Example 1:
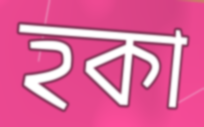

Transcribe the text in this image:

হকা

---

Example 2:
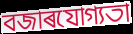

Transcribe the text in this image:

বজাৰযোগ্যতা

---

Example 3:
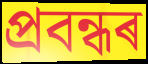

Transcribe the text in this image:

প্ৰবন্ধৰ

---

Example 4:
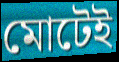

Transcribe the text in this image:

মোটেই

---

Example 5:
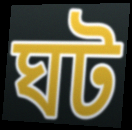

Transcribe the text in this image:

ঘট